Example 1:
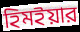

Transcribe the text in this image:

হিমইয়ার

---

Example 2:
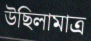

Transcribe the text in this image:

উছিলামাত্র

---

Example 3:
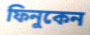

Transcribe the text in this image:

ফিনুকেন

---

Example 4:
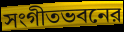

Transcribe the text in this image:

সংগীতভবনের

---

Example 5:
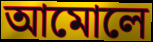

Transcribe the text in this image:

আমোলে